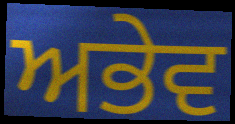
ਅਭੇਵ